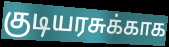
குடியரசுக்காக